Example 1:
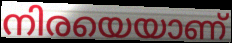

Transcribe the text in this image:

നിരയെയാണ്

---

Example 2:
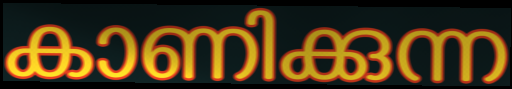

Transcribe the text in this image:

കാണിക്കുന്ന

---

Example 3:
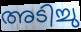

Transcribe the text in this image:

അടിച്ചു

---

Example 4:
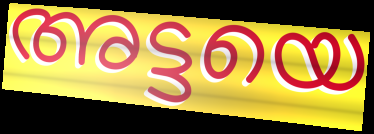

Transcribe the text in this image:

അട്ടയെ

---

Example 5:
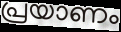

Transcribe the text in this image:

പ്രയാണം